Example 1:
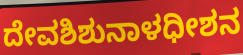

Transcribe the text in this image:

ದೇವಶಿಶುನಾಳಧೀಶನ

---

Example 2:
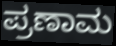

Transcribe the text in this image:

ಪ್ರಣಾಮ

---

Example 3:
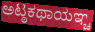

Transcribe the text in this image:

ಅಟ್ಠಕಥಾಯಞ್ಚ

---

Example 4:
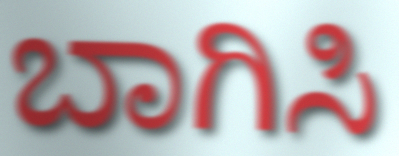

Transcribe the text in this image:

ಬಾಗಿಸಿ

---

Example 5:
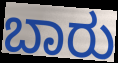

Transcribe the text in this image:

ಬಾರು